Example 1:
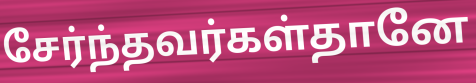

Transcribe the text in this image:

சேர்ந்தவர்கள்தானே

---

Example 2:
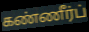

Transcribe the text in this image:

கண்ணீர்ப்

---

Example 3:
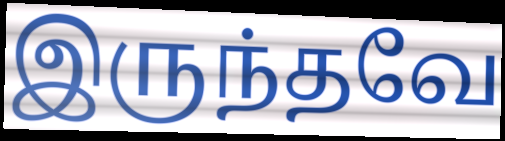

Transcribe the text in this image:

இருந்தவே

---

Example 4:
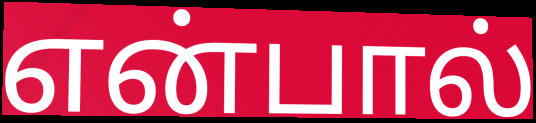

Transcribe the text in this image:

என்பால்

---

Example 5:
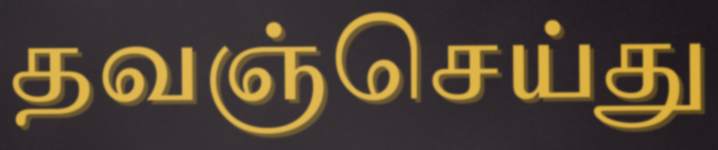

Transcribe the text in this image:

தவஞ்செய்து